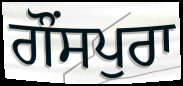
ਗੌਂਸਪੁਰਾ